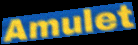
Amulet